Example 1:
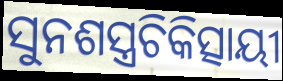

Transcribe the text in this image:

ସୁନଶସ୍ତ୍ରଚିକିତ୍ସାୟୀ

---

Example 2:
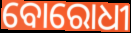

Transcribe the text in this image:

ବୋରୋଧୀ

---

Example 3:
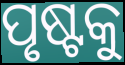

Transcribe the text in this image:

ପୃଷ୍ଟକୁ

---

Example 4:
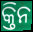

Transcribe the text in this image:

କ୍ତିନ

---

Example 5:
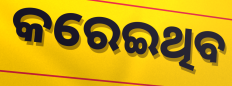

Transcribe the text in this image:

କରେଇଥିବ